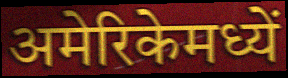
अमेरिकेमध्यें